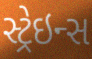
સ્ટ્રેઇન્સ